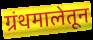
ग्रंथमालेतून